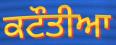
ਕਟੌਤੀਆ